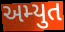
અમ્યુત